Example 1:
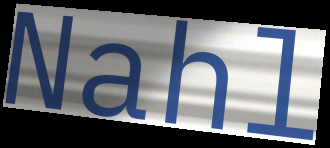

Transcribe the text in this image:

Nahl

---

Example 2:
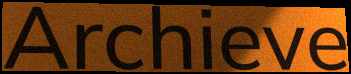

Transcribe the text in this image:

Archieve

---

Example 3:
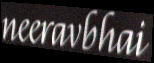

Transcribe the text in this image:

neeravbhai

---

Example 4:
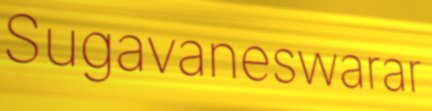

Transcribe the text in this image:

Sugavaneswarar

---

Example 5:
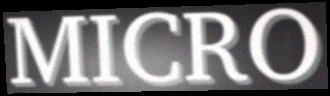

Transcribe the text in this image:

MICRO